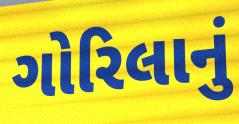
ગોરિલાનું